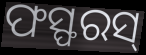
ଫସ୍ଫରସ୍